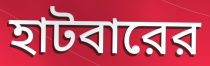
হাটবারের